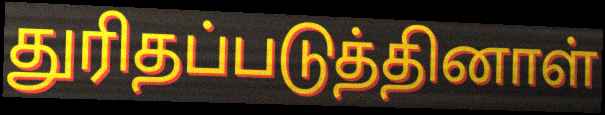
துரிதப்படுத்தினாள்